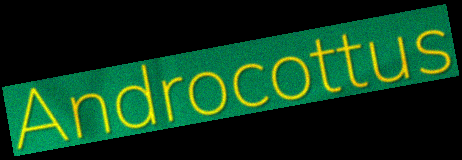
Androcottus